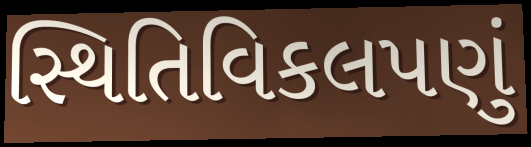
સ્થિતિવિકલપણું